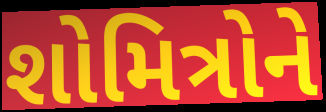
શોમિત્રોને